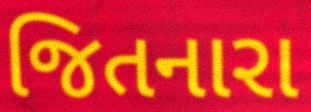
જિતનારા